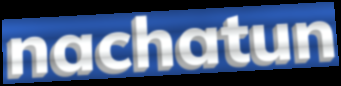
nachatun